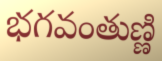
భగవంతుణ్ణి